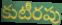
కుటీరపు